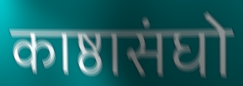
काष्ठासंघो